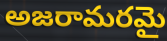
అజరామరమై